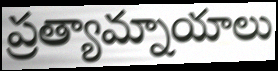
ప్రత్యామ్నాయాలు